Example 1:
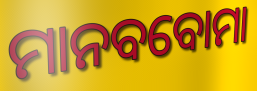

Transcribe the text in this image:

ମାନବବୋମା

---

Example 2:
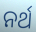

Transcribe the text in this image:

ନର୍ଥ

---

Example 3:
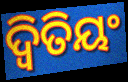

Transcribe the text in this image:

ଦ୍ୱିତିୟଂ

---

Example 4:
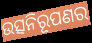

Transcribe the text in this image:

ଉତ୍ସନିରୂପଣର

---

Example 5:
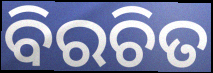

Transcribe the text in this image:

ବିରଚିତ